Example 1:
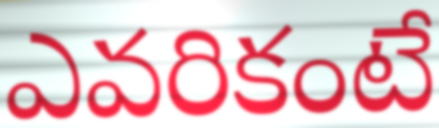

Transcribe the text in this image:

ఎవరికంటే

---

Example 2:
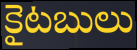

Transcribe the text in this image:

కైటబులు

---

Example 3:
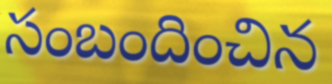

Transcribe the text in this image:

సంబందించిన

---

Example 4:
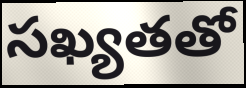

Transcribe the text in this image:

సఖ్యతతో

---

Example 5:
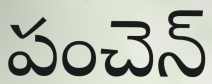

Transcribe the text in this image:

పంచెన్